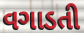
વગાડતી